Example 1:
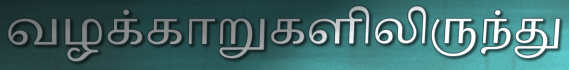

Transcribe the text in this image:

வழக்காறுகளிலிருந்து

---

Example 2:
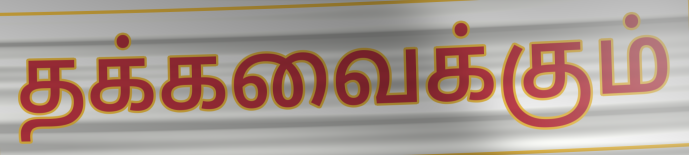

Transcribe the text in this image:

தக்கவைக்கும்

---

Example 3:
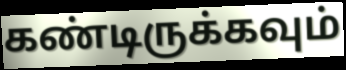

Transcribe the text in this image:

கண்டிருக்கவும்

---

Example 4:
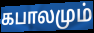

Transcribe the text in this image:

கபாலமும்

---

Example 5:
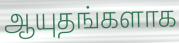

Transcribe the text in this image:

ஆயுதங்களாக